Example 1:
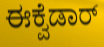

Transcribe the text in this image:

ಈಕ್ವೆಡಾರ್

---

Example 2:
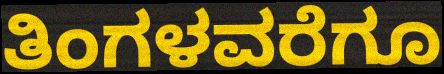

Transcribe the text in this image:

ತಿಂಗಳವರೆಗೂ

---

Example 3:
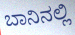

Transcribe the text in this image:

ಬಾನಿನಲ್ಲಿ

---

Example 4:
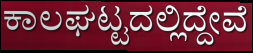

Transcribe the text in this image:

ಕಾಲಘಟ್ಟದಲ್ಲಿದ್ದೇವೆ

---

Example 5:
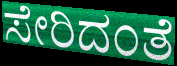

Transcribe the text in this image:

ಸೇರಿದಂತೆ